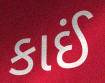
કાઈં